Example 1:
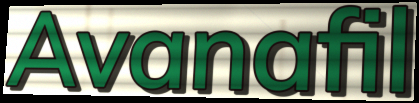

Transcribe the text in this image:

Avanafil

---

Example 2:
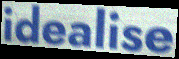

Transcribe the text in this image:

idealise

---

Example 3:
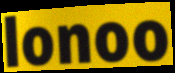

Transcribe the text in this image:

lonoo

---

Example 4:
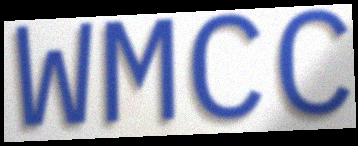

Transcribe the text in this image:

WMCC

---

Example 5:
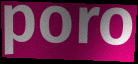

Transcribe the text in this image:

poro